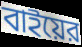
বাইয়ের